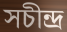
সচীন্দ্র